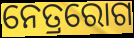
ନେତ୍ରରୋଗ